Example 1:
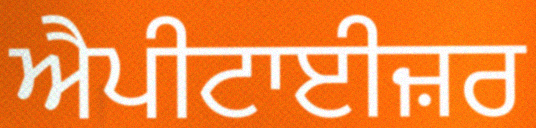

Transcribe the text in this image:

ਐਪੀਟਾਈਜ਼ਰ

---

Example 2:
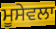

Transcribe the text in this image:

ਮੂਸੇਵਲਾ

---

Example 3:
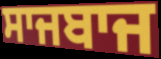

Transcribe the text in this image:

ਸਾਜਬਾਜ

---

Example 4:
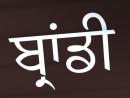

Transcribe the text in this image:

ਬ੍ਰਾਂਡੀ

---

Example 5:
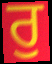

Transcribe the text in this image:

ਰੁ